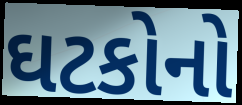
ઘટકોનો